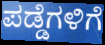
ಪಡ್ಡೆಗಳಿಗೆ